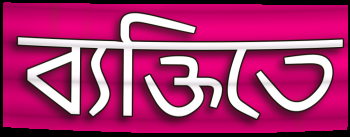
ব্যক্তিতে